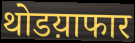
थोडय़ाफार